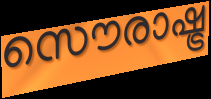
സൌരാഷ്ട്ര